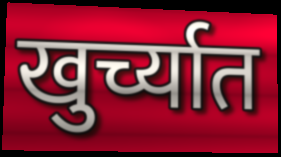
खुर्च्यात